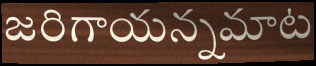
జరిగాయన్నమాట